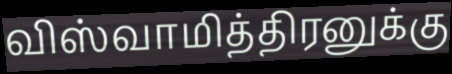
விஸ்வாமித்திரனுக்கு